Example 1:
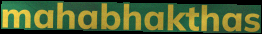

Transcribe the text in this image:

mahabhakthas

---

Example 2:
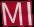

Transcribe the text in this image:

MI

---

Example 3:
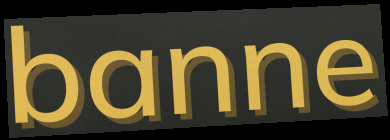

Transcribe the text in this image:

banne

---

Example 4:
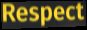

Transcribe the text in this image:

Respect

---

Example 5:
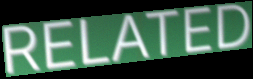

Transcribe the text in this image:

RELATED